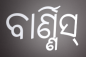
ବାର୍ଣ୍ଣିସ୍